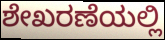
ಶೇಖರಣೆಯಲ್ಲಿ